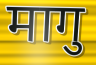
मागु